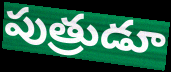
పుత్రుడూ